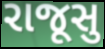
રાજૂસુ